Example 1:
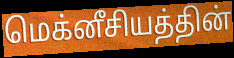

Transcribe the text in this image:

மெக்னீசியத்தின்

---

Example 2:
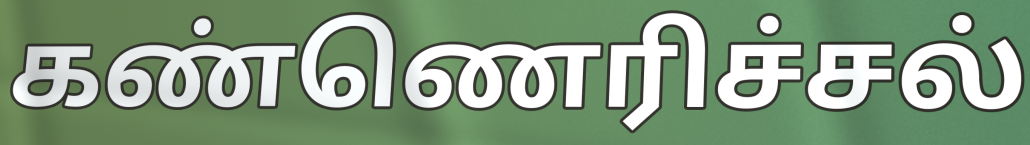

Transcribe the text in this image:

கண்ணெரிச்சல்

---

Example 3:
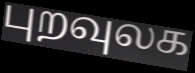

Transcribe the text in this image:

புறவுலக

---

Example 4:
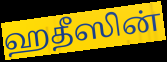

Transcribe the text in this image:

ஹதீஸின்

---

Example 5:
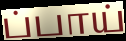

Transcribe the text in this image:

ப்பாய்